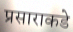
प्रसाराकडे